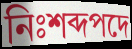
নিঃশব্দপদে